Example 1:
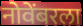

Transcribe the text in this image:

नोवेंबरला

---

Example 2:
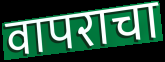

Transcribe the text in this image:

वापराचा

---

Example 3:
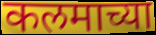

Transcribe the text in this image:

कलमाच्या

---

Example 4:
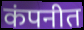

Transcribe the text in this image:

कंपनीत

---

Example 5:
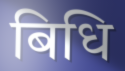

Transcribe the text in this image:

बिधि